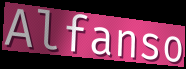
Alfanso